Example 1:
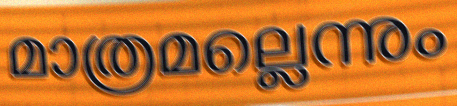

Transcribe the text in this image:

മാത്രമല്ലെന്നും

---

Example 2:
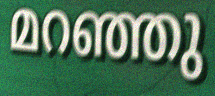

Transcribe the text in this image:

മറഞ്ഞു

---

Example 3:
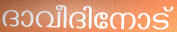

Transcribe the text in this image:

ദാവീദിനോട്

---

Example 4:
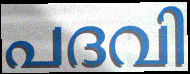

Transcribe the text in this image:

പദവി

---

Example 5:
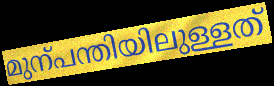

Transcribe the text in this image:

മുന്പന്തിയിലുള്ളത്